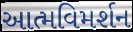
આત્મવિમર્શન